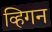
व्हिगन